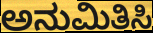
ಅನುಮಿತಿಸಿ